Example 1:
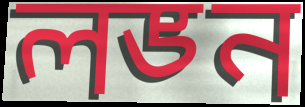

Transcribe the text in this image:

লঙ্ন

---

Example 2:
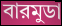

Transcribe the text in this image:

বারমুডা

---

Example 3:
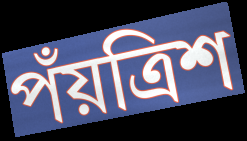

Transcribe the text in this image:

পঁয়ত্রিশ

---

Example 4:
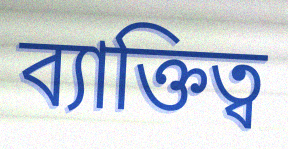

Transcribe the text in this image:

ব্যাক্তিত্ব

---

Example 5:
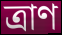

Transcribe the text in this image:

ত্রাণ